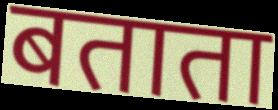
बताता